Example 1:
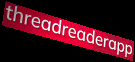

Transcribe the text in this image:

threadreaderapp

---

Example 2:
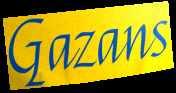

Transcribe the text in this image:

Gazans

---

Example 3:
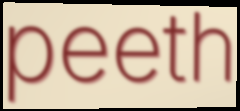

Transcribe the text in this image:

peeth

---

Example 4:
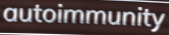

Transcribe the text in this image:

autoimmunity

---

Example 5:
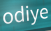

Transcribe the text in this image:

odiye